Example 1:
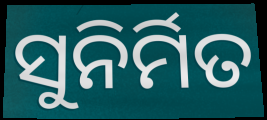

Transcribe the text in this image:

ସୁନିର୍ମିତ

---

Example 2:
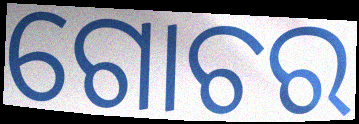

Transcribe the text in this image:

ଗୋଚର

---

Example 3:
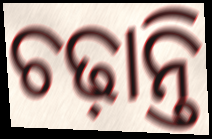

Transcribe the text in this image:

ଚଢ଼ାନ୍ତି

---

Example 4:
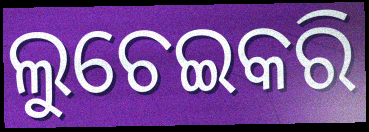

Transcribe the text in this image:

ଲୁଚେଇକରି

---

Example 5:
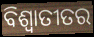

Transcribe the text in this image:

ବିଶ୍ଵାତୀତର